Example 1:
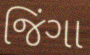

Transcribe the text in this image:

જિંગા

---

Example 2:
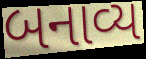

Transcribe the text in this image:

બનાવ્ય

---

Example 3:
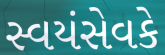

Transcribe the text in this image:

સ્વયંસેવકે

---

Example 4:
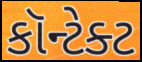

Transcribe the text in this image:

કૉન્ટેક્ટ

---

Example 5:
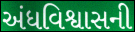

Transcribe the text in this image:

અંધવિશ્વાસની